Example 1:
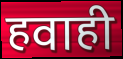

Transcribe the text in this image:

हवाही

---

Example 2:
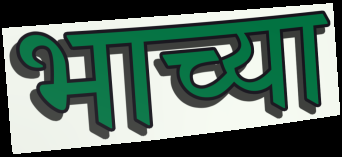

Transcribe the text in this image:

भाच्या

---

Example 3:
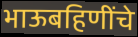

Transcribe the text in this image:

भाऊबहिणींचे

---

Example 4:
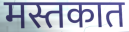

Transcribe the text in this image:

मस्तकात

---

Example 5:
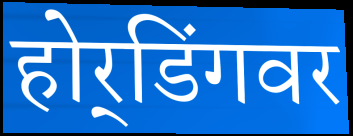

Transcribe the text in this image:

होर्डिंगवर